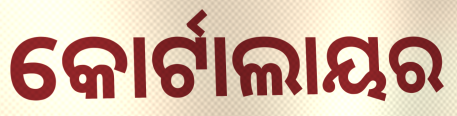
କୋର୍ଟାଲାୟର